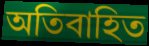
অতিবাহিত